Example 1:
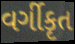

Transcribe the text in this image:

વર્ગીકૃત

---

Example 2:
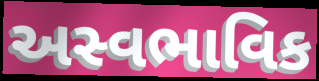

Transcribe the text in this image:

અસ્વભાવિક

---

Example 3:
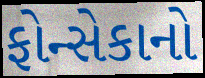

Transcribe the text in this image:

ફોન્સેકાનો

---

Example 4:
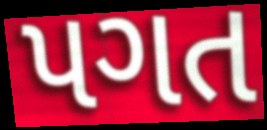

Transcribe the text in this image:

પગત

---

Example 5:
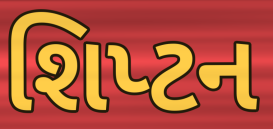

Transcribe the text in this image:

શિપ્ટન